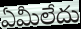
ఏమీలేదు